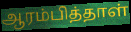
ஆரம்பித்தாள்